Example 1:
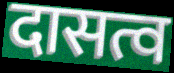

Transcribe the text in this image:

दासत्व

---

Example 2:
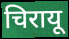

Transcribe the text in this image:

चिरायू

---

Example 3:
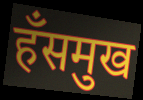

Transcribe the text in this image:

हँसमुख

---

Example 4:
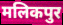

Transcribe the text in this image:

मलिकपुर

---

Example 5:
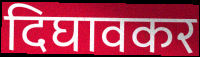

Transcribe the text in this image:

दिघावकर